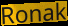
Ronak